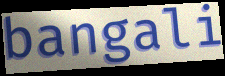
bangali